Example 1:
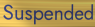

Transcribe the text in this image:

Suspended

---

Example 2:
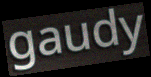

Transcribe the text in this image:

gaudy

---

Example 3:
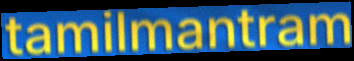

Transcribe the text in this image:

tamilmantram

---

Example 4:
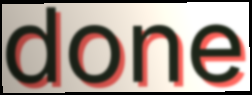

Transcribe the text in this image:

done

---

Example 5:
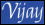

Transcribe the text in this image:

Vijay